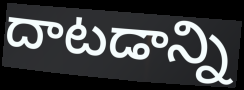
దాటడాన్ని